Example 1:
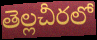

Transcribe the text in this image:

తెల్లచీరలో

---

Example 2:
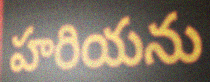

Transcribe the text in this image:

హరియను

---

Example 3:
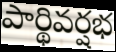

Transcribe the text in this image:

పార్థివర్షభ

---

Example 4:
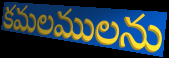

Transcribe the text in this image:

కమలములను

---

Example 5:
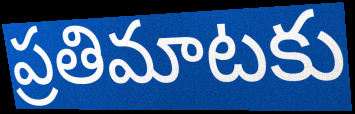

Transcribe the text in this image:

ప్రతిమాటకు